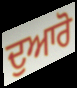
ਦੁਆਰੋ